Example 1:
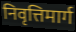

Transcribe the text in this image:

निवृत्तिमार्ग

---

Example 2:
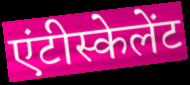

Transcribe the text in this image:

एंटीस्केलेंट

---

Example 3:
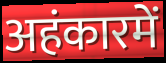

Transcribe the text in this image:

अहंकारमें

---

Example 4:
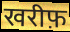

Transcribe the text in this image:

खरीफ़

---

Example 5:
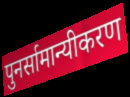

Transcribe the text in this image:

पुनर्सामान्यीकरण